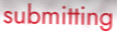
submitting